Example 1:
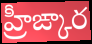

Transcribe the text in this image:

హ్రీఙ్కార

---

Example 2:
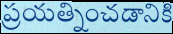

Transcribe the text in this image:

ప్రయత్నించడానికి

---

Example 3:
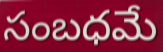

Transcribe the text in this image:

సంబధమే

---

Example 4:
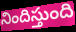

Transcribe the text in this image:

నిందిస్తుంది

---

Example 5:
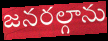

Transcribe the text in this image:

జనరల్గాను